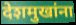
देशमुखांना